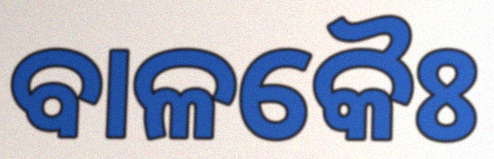
ବାଳକୈଃ